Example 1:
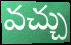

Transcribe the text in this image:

వచ్చు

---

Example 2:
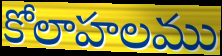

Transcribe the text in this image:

కోలాహలము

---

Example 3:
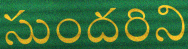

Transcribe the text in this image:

సుందరిని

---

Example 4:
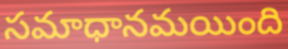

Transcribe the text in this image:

సమాధానమయింది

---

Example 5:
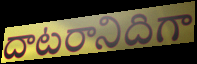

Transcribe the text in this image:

దాటరానిదిగా